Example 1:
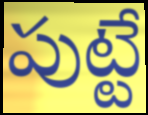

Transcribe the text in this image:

పుట్టే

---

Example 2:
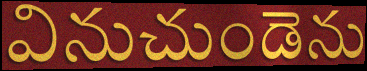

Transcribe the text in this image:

వినుచుండెను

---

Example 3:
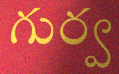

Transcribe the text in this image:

గుర్వ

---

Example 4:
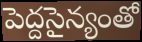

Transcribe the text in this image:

పెద్దసైన్యంతో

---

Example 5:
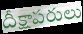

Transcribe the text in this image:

దీక్షాపరులు